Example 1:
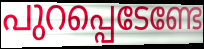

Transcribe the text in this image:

പുറപ്പെടേണ്ടേ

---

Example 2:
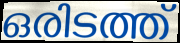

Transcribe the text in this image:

ഒരിടത്ത്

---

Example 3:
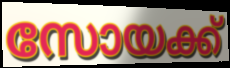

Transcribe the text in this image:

സോയക്ക്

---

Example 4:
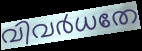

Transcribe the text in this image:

വിവർധതേ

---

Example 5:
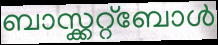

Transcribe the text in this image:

ബാസ്ക്കറ്റ്ബോൾ